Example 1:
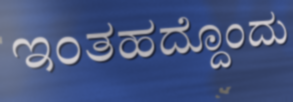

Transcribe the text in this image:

ಇಂತಹದ್ದೊಂದು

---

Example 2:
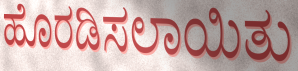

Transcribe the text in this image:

ಹೊರಡಿಸಲಾಯಿತು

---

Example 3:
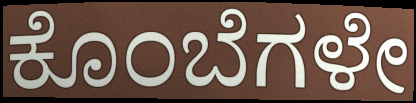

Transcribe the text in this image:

ಕೊಂಬೆಗಳೇ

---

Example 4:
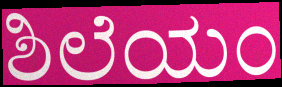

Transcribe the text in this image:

ಶಿಲೆಯಂ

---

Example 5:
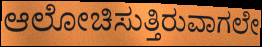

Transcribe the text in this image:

ಆಲೋಚಿಸುತ್ತಿರುವಾಗಲೇ